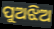
ପୁଅଝିଅ